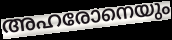
അഹരോനെയും